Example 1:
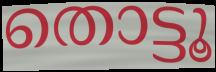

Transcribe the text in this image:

തൊട്ടൂ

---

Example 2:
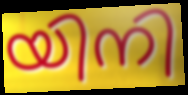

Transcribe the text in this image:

യിനി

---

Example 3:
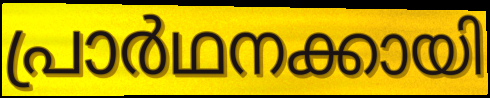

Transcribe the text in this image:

പ്രാർഥനക്കായി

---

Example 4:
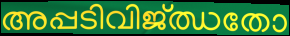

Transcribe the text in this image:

അപ്പടിവിജ്ഝതോ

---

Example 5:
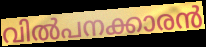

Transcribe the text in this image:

വിൽപനക്കാരൻ